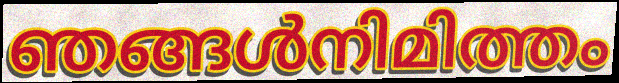
ഞങ്ങൾനിമിത്തം